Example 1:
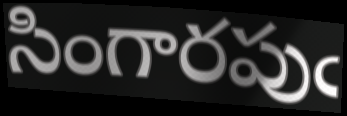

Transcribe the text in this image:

సింగారపుఁ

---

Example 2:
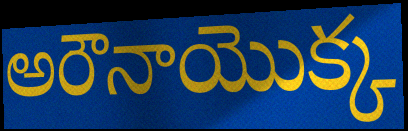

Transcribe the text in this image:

అరౌనాయొక్క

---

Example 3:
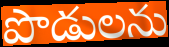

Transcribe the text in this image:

పొడులను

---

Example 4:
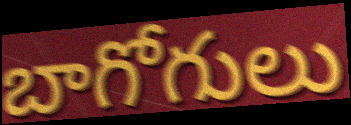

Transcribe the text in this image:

బాగోగులు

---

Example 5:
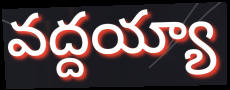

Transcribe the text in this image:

వద్దయ్యా